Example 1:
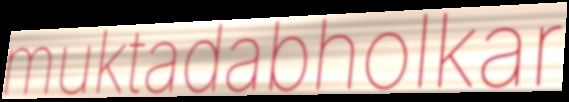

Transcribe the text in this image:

muktadabholkar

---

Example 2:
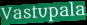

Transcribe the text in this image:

Vastupala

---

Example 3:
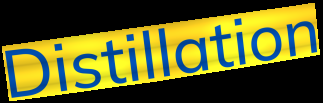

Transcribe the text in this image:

Distillation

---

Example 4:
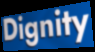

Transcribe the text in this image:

Dignity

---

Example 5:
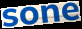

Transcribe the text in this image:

sone